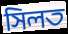
সিলত